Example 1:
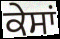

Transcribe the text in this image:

ਕੇਸਾਂ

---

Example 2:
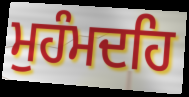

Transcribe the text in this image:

ਮੁਹੰਮਦਹਿ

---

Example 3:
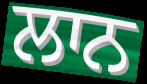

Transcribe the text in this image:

ਲਾਨ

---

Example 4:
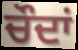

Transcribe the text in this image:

ਚੌਦਾਂ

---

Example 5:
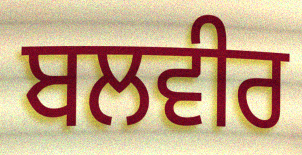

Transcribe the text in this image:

ਬਲਵੀਰ